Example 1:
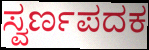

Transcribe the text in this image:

ಸ್ವರ್ಣಪದಕ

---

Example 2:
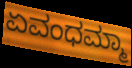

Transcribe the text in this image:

ಏವಂಧಮ್ಮಾ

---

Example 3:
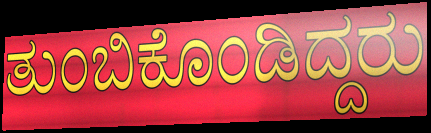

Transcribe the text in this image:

ತುಂಬಿಕೊಂಡಿದ್ದರು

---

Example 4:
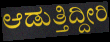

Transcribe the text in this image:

ಆಡುತ್ತಿದ್ದೀರಿ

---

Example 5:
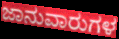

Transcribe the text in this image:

ಜಾನುವಾರುಗಳ